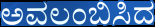
ಅವಲಂಬಿಸಿದ